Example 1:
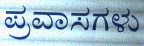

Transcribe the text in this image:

ಪ್ರವಾಸಗಳು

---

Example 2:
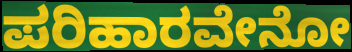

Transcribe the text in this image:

ಪರಿಹಾರವೇನೋ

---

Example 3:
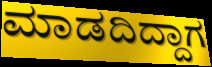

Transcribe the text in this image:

ಮಾಡದಿದ್ದಾಗ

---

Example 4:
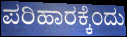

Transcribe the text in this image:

ಪರಿಹಾರಕ್ಕೆಂದು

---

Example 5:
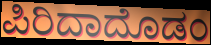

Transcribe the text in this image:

ಪಿರಿದಾದೊಡಂ